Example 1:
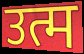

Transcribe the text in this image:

उत्म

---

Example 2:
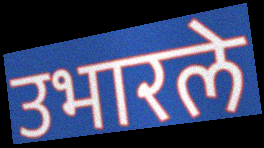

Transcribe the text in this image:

उभारले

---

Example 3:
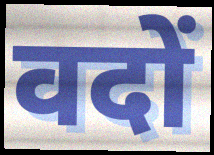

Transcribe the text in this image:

वदों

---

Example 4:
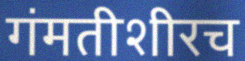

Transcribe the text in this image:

गंमतीशीरच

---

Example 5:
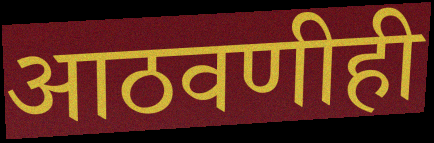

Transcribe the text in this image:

आठवणीही